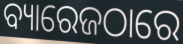
ବ୍ୟାରେଜଠାରେ